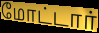
மோட்டார்